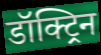
डॉक्ट्रिन